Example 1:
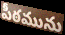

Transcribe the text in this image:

పీఠమును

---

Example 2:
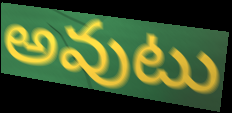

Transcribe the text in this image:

అవుటు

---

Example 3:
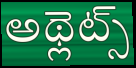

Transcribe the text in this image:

అథ్లెట్స్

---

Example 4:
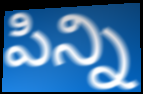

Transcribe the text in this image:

పిన్ని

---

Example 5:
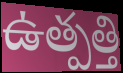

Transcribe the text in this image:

ఉత్పత్తి